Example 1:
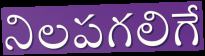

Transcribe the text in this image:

నిలపగలిగే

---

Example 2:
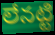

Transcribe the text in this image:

లేనట్టి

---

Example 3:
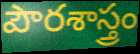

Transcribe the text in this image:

పౌరశాస్త్రం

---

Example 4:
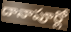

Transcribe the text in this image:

దానాపూర్లో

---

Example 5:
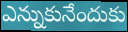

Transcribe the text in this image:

ఎన్నుకునేందుకు